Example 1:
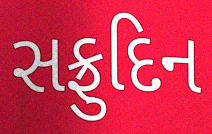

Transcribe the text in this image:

સફ્રુદિન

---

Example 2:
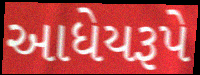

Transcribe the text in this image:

આધેયરૂપે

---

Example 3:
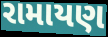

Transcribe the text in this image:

રામાયણ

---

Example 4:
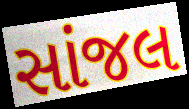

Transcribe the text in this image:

સાંજલ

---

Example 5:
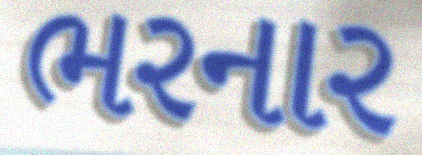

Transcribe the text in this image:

ભરનાર